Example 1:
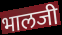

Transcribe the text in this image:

भालजी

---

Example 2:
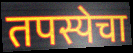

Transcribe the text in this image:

तपस्येचा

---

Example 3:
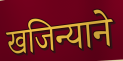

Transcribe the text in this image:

खजिन्याने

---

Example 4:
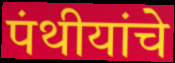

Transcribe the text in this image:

पंथीयांचे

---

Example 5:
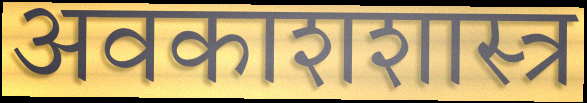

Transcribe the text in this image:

अवकाशशास्त्र